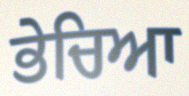
ਭੇਚਿਆ